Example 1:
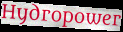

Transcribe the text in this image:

Hydropower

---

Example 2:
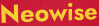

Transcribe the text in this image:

Neowise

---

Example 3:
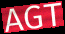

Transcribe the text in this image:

AGT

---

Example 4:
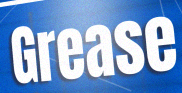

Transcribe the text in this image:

Grease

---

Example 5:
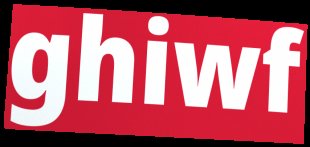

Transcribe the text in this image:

ghiwf